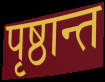
पृष्ठान्त